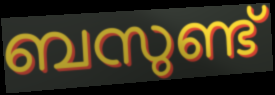
ബസുണ്ട്